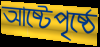
আষ্টেপৃষ্ঠে